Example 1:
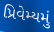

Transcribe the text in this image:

પ્રિવેમ્યમું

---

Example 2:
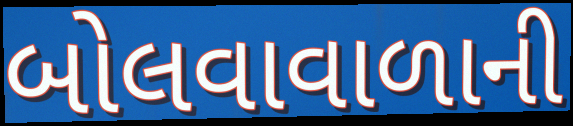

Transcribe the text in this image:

બોલવાવાળાની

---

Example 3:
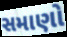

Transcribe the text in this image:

સમાણો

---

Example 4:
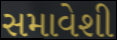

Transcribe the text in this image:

સમાવેશી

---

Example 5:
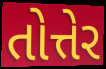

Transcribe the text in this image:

તોત્તેર